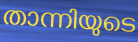
താന്നിയുടെ